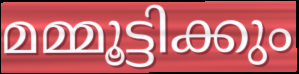
മമ്മൂട്ടിക്കും